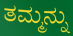
ತಮ್ಮನ್ನು